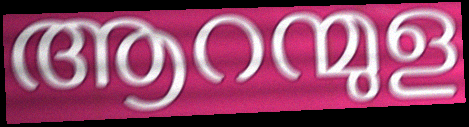
ആറന്മുള